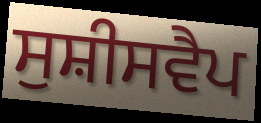
ਸੁਸ਼ੀਸਵੈਪ